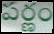
పర్ణం